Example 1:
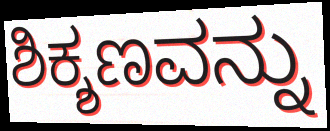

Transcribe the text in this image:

ಶಿಕ್ಶಣವನ್ನು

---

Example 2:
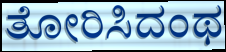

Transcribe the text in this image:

ತೋರಿಸಿದಂಥ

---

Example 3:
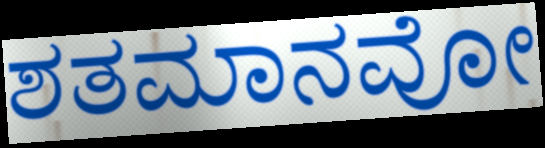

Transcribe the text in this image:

ಶತಮಾನವೋ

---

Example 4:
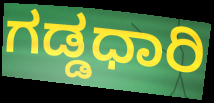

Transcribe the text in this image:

ಗಡ್ಡಧಾರಿ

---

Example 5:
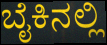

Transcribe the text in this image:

ಬೈಕಿನಲ್ಲಿ